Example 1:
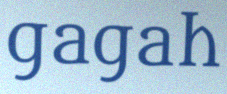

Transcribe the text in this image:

gagah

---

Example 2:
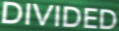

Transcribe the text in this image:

DIVIDED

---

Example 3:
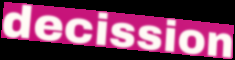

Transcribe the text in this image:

decission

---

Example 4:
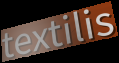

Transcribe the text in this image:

textilis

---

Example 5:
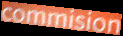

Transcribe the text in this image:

commision